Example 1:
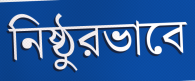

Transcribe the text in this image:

নিষ্ঠুরভাবে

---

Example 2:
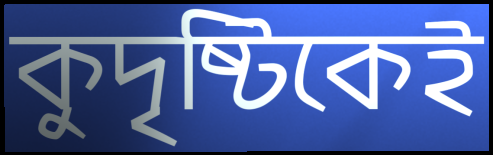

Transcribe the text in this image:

কুদৃষ্টিকেই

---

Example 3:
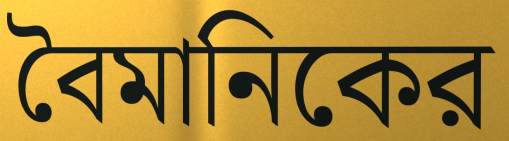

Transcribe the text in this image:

বৈমানিকের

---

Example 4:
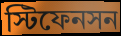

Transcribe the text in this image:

স্টিফেনসন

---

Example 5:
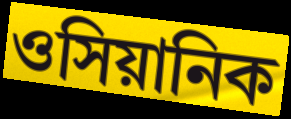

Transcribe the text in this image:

ওসিয়ানিক